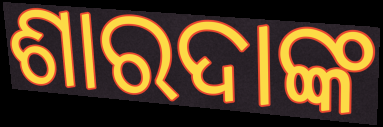
ଶାରଦାଙ୍କ